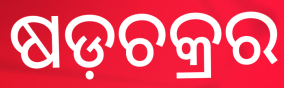
ଷଡ଼ଚକ୍ରର